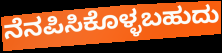
ನೆನಪಿಸಿಕೊಳ್ಳಬಹುದು